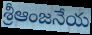
శ్రీఆంజనేయ